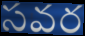
సవర